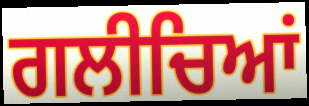
ਗਲੀਚਿਆਂ